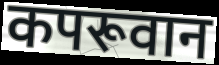
कपरूवान